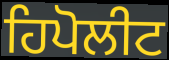
ਹਿਪੋਲੀਟ